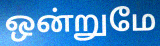
ஒன்றுமே